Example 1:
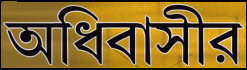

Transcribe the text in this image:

অধিবাসীর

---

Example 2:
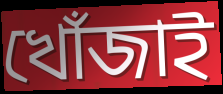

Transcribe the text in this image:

খোঁজাই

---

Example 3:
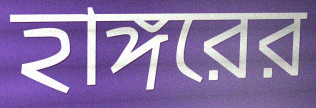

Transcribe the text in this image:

হাঙ্গরের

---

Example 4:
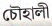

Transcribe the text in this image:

চৌহালী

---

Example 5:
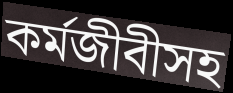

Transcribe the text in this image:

কর্মজীবীসহ